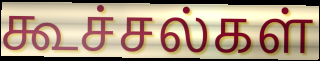
கூச்சல்கள்